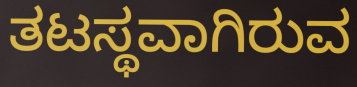
ತಟಸ್ಥವಾಗಿರುವ